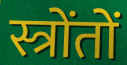
स्त्रोंतों